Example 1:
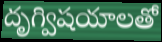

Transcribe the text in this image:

దృగ్విషయాలతో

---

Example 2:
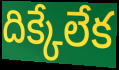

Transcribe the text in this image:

దిక్కేలేక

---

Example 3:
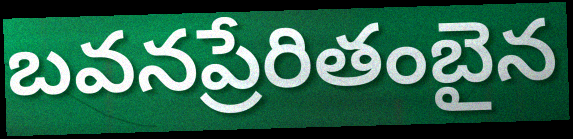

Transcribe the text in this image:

బవనప్రేరితంబైన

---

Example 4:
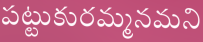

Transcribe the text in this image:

పట్టుకురమ్మనమని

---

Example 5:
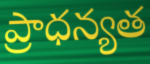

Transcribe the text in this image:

ప్రాధన్యత